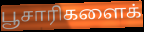
பூசாரிகளைக்